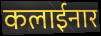
कलाईनार